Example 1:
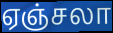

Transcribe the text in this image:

ஏஞ்சலா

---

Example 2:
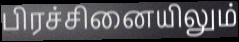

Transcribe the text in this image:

பிரச்சினையிலும்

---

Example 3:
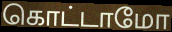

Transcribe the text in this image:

கொட்டாமோ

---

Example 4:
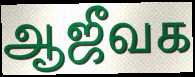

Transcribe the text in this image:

ஆஜீவக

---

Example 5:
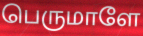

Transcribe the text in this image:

பெருமாளே